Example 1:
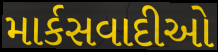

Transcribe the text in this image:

માર્કસવાદીઓ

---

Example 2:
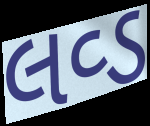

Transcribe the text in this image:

લવ્ડ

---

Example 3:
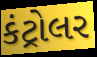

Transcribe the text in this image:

કંટ્રોલર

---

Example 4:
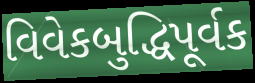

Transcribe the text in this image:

વિવેકબુદ્ધિપૂર્વક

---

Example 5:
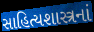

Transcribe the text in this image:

સાહિત્યશાસ્ત્રનાં